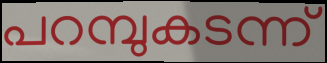
പറമ്പുകടന്ന്